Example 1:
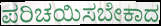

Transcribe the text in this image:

ಪರಿಚಯಿಸಬೇಕಾದ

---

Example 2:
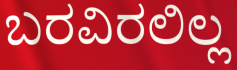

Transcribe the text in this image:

ಬರವಿರಲಿಲ್ಲ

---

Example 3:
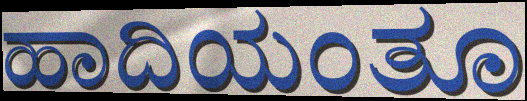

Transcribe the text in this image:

ಹಾದಿಯಂತೂ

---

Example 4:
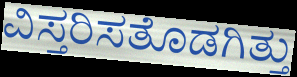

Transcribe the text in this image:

ವಿಸ್ತರಿಸತೊಡಗಿತ್ತು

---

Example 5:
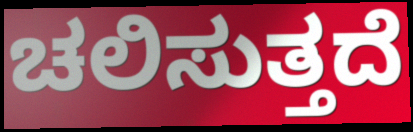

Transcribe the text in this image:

ಚಲಿಸುತ್ತದೆ